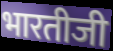
भारतीजी